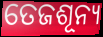
ତେଜଶୂନ୍ୟ